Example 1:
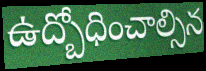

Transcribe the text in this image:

ఉద్బోధించాల్సిన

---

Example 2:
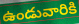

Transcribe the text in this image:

ఉండువారికి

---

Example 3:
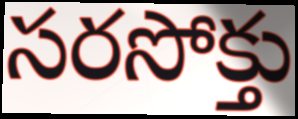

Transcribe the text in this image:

సరసోక్తు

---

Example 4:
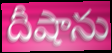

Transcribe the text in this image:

దీషాను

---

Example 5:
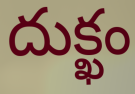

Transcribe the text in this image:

దుక్ఖం